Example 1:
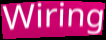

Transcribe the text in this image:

Wiring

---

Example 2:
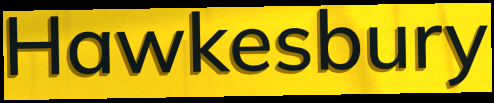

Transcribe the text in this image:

Hawkesbury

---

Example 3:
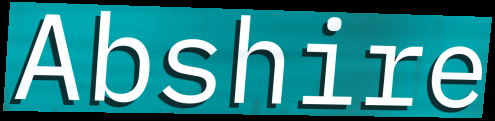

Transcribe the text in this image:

Abshire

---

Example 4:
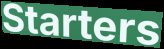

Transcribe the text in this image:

Starters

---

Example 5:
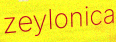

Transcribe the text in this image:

zeylonica